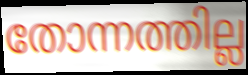
തോന്നത്തില്ല